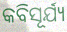
କବିସୂର୍ଯ୍ଯ